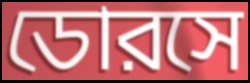
ডোরসে